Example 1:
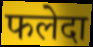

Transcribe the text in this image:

फलेदा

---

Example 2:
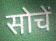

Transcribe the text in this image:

सोचें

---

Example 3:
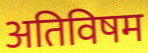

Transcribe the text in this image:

अतिविषम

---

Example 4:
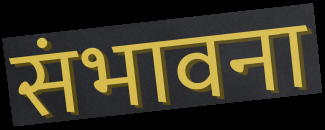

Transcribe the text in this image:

संभावना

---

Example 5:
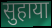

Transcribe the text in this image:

सुहाया